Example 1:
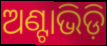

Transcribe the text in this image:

ଅଣ୍ଟାଭିଡ଼ି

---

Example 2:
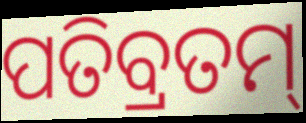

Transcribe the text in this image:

ପତିବ୍ରତମ୍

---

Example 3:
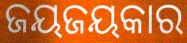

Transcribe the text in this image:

ଜୟଜୟକାର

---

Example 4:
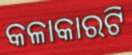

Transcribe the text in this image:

କଳାକାରଟି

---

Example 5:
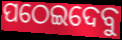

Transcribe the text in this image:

ପଠେଇଦେବୁ